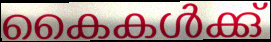
കൈകൾക്കു്